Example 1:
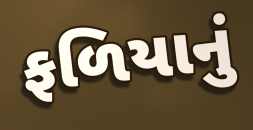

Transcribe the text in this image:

ફળિયાનું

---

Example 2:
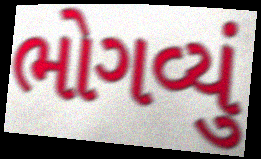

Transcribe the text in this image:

ભોગવ્યું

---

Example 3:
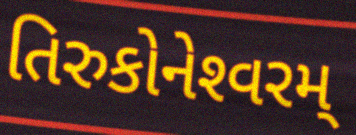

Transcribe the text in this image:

તિરુકોનેશ્‍વરમ્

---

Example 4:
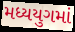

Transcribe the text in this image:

મધ્યયુગમાં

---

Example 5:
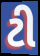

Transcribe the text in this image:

ટી